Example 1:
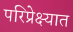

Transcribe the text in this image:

परिप्रेक्ष्यात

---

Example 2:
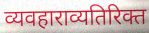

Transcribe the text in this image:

व्यवहाराव्यतिरिक्त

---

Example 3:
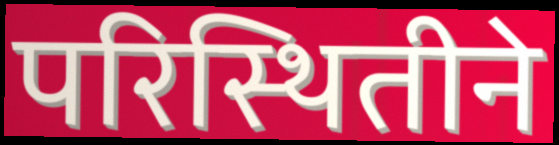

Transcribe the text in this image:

परिस्थितीने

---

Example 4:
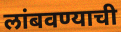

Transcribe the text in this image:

लांबवण्याची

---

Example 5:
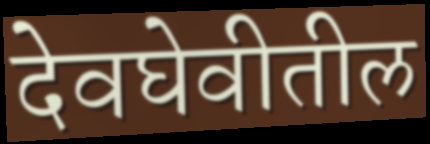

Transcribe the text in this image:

देवघेवीतील